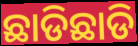
ଛାଡିଛାଡି